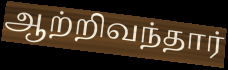
ஆற்றிவந்தார்